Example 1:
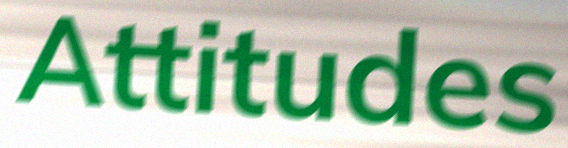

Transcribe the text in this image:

Attitudes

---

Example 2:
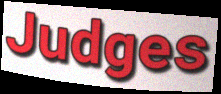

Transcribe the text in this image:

Judges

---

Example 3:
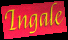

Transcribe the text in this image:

Ingale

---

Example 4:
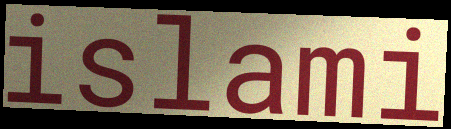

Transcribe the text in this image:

islami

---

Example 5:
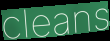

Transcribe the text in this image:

cleans